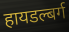
हायडल्बर्ग